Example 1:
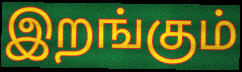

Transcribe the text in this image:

இறங்கும்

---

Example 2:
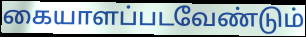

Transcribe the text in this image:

கையாளப்படவேண்டும்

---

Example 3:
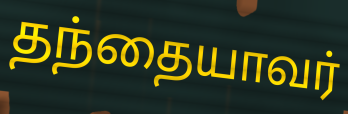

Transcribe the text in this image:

தந்தையாவர்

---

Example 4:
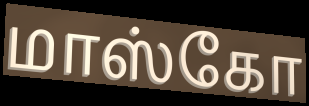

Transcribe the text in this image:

மாஸ்கோ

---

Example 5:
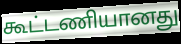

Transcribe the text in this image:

கூட்டணியானது